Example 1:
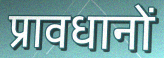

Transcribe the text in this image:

प्रावधानों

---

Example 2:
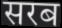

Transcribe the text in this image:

सरब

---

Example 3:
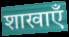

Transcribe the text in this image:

शाखाएँ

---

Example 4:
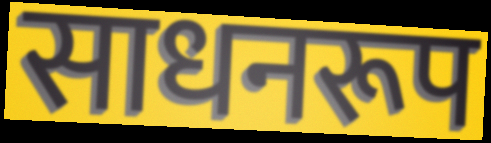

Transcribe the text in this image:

साधनरूप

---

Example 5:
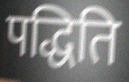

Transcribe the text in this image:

पद्धिति